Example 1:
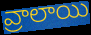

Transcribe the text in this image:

వ్రాలాయి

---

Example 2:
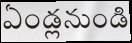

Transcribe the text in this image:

ఏండ్లనుండి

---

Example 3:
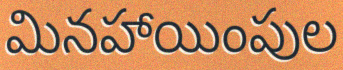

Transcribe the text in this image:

మినహాయింపుల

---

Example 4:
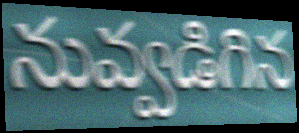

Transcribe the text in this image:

నువ్వడిగిన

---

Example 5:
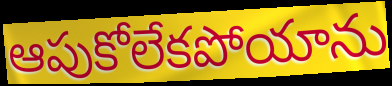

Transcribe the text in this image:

ఆపుకోలేకపోయాను